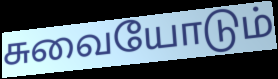
சுவையோடும்